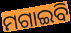
ମଗାଇବି